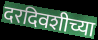
दरदिवशीच्या